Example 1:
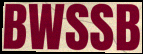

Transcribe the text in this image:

BWSSB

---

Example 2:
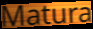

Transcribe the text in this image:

Matura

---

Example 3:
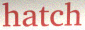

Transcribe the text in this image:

hatch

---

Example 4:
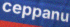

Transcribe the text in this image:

ceppanu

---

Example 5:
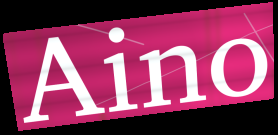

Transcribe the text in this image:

Aino